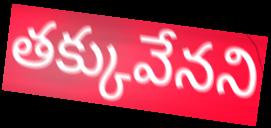
తక్కువేనని